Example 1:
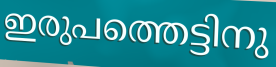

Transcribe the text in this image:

ഇരുപത്തെട്ടിനു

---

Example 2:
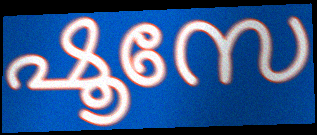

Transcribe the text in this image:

ഷൂസേ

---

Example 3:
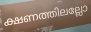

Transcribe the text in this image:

ക്ഷണത്തിലല്ലോ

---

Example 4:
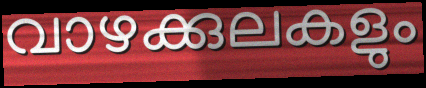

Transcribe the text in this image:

വാഴക്കുലകളും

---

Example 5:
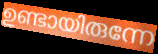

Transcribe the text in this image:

ഉണ്ടായിരുന്നേ